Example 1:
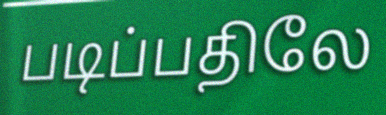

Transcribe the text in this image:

படிப்பதிலே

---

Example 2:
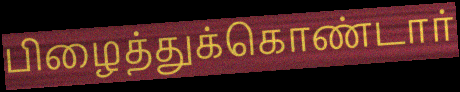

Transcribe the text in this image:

பிழைத்துக்கொண்டார்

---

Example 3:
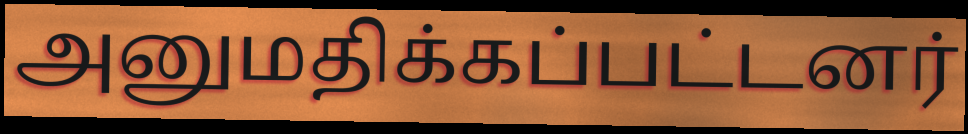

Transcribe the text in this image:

அனுமதிக்கப்பட்டனர்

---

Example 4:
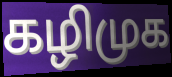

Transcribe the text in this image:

கழிமுக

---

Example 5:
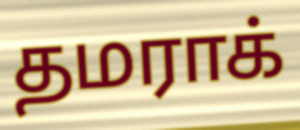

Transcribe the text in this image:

தமராக்